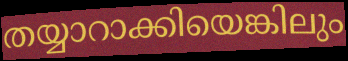
തയ്യാറാക്കിയെങ്കിലും